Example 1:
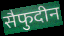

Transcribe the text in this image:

सैफुदीन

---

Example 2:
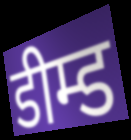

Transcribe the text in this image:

डीम्ड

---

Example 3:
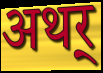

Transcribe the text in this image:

अथर्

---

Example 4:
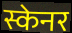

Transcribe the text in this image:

स्‍केनर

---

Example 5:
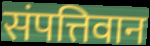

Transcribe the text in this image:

संपत्तिवान